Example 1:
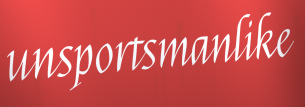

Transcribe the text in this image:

unsportsmanlike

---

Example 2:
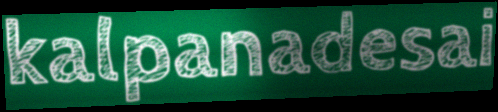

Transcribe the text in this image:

kalpanadesai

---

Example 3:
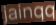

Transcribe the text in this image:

jainqq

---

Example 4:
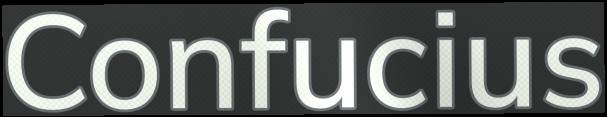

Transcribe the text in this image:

Confucius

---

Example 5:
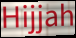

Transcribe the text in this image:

Hijjah